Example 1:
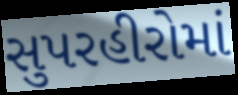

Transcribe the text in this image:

સુપરહીરોમાં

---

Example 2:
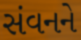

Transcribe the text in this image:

સંવનને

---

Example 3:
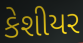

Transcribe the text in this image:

કેશીયર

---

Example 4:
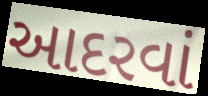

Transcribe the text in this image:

આદરવાં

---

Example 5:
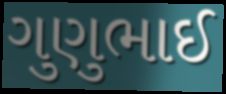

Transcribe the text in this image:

ગુણુભાઈ